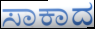
ಸಾಕಾದ